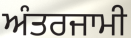
ਅੰਤਰਜਾਮੀ